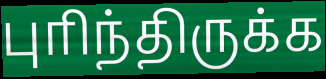
புரிந்திருக்க